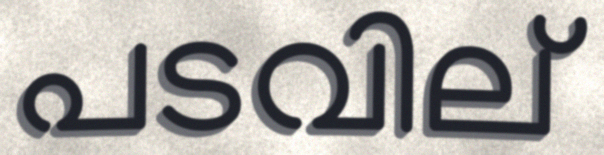
പടവില്